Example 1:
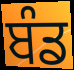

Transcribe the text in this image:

ਬੰਡ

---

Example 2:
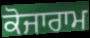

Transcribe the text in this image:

ਕੋਜਾਰਾਮ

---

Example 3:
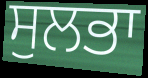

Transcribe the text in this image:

ਸੁਲਭਾ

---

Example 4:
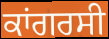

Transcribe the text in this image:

ਕਾਂਗਰਸੀ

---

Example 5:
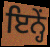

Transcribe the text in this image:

ਇਨ੍ਹੇਂ